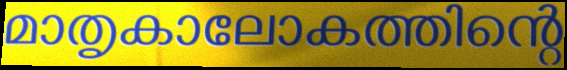
മാതൃകാലോകത്തിന്റെ